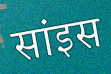
सांइस